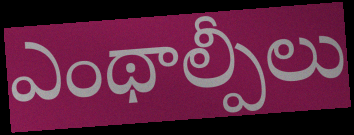
ఎంథాల్పీలు